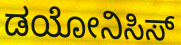
ಡಯೋನಿಸಿಸ್